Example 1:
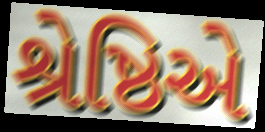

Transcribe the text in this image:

શ્રેષ્ઠિએ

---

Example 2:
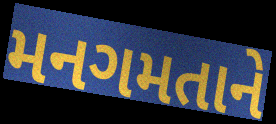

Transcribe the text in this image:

મનગમતાને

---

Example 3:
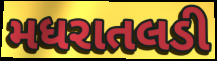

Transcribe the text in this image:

મધરાતલડી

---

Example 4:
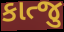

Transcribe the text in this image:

કાત્જુ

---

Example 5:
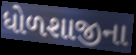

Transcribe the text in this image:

ધોળશાજીના